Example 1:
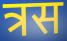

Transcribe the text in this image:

त्रस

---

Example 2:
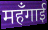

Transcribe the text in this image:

महँगाई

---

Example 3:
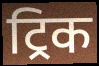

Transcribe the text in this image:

ट्रिक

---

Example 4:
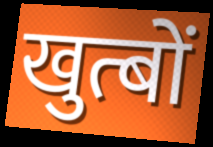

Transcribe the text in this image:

खुत्बों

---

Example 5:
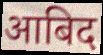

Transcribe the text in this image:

आबिद